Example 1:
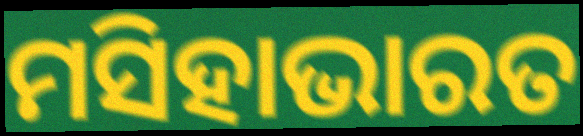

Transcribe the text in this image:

ମସିହାଭାରତ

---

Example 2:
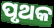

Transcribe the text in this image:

ପୃଥକ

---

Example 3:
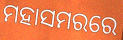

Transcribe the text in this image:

ମହାସମରରେ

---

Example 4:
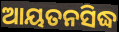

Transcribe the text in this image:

ଆୟତନସିଦ୍ଧ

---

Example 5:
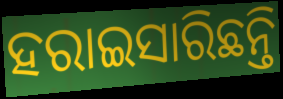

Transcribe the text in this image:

ହରାଇସାରିଛନ୍ତି